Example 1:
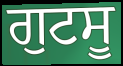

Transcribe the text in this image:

ਗੁਟਸੂ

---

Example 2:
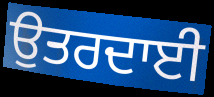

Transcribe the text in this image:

ਉਤਰਦਾਈ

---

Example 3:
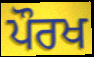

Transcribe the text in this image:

ਪੌਰਖ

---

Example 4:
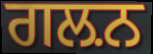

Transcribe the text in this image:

ਗਲ਼ਨ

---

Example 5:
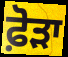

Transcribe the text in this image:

ਫ਼ੋੜਾ